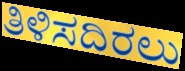
ತಿಳಿಸದಿರಲು